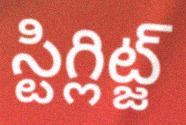
స్టిగ్లిట్జ్